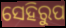
ସେହିରୁପ